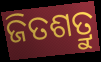
ଜିତଶତ୍ରୁ